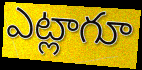
ఎట్లాగూ